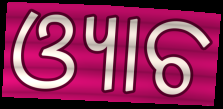
ଓ୍ୟାଚ